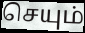
செயும்